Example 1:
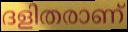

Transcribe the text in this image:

ദളിതരാണ്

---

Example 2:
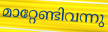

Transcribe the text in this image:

മാറ്റേണ്ടിവന്നു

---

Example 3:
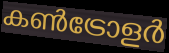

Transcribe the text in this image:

കൺട്രോളർ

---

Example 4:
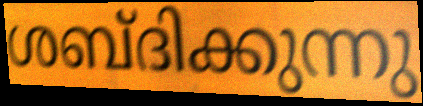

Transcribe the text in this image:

ശബ്ദിക്കുന്നു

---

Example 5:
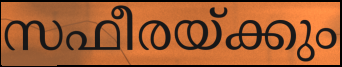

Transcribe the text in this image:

സഫീരയ്ക്കും